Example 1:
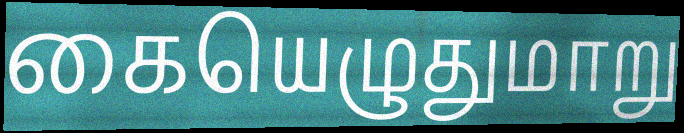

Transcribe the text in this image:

கையெழுதுமாறு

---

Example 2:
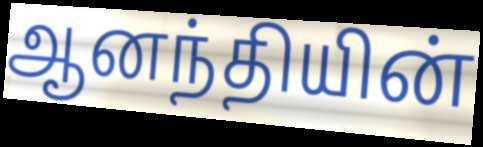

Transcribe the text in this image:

ஆனந்தியின்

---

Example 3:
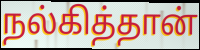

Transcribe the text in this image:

நல்கித்தான்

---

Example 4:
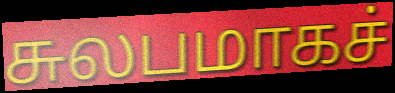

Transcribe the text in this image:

சுலபமாகச்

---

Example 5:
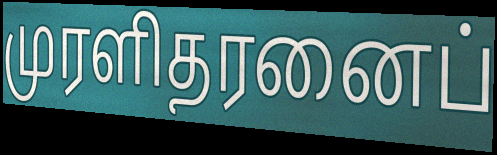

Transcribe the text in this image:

முரளிதரனைப்